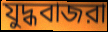
যুদ্ধবাজরা